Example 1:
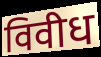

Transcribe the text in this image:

विवीध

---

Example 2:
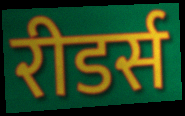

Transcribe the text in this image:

रीडर्स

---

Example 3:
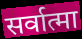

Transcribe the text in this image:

सर्वात्मा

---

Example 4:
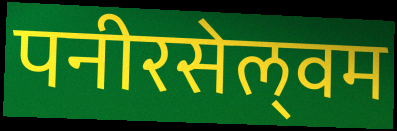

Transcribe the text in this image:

पनीरसेल्वम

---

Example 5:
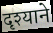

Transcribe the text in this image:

दृश्याने